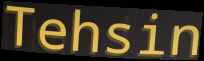
Tehsin